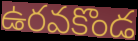
ఉరవకొండ